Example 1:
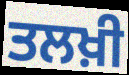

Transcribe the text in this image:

ਤਲਖ਼ੀ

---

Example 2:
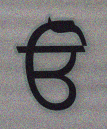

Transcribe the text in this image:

ਓੋ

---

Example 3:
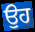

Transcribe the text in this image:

ਉਹ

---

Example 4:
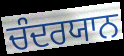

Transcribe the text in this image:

ਚੰਦਰਯਾਨ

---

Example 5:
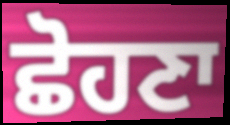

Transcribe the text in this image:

ਛੋਹਣਾ